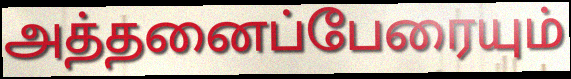
அத்தனைப்பேரையும்